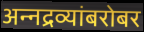
अन्नद्रव्यांबरोबर